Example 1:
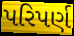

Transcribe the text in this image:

પરિપર્ણ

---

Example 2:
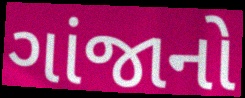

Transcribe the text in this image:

ગાંજાનો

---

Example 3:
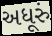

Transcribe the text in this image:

અધૂરું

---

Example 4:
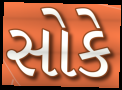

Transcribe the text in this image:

સોકે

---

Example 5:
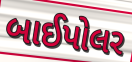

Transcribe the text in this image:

બાઈપોલર